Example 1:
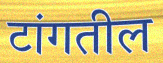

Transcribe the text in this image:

टांगतील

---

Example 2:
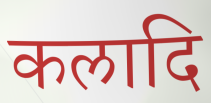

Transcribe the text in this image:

कलादि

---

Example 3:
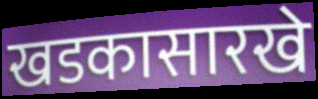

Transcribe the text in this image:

खडकासारखे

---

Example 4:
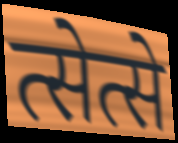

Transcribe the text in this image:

त्सेत्से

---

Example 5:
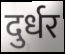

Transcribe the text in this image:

दुर्धर